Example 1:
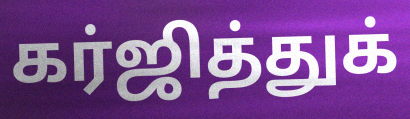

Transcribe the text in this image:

கர்ஜித்துக்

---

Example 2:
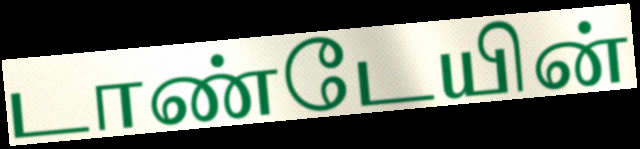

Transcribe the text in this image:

டாண்டேயின்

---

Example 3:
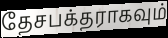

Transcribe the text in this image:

தேசபக்தராகவும்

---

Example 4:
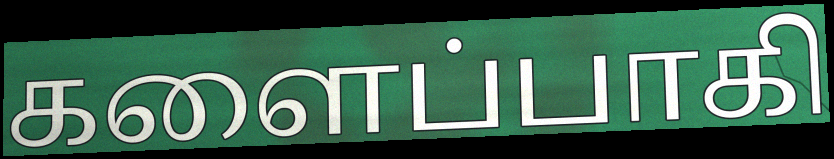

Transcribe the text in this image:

களைப்பாகி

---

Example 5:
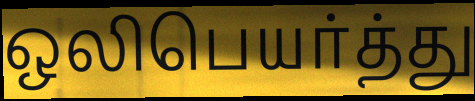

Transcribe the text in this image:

ஒலிபெயர்த்து